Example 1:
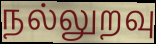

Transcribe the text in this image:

நல்லுறவு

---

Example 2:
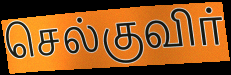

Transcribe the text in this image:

செல்குவிர்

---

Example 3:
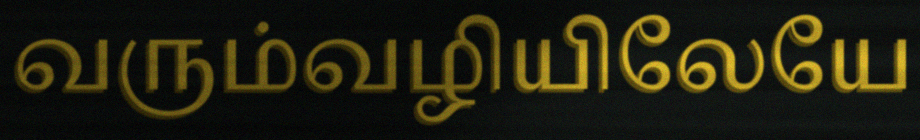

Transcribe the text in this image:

வரும்வழியிலேயே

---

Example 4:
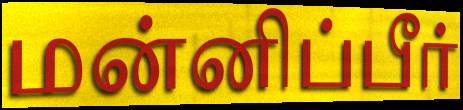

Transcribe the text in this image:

மன்னிப்பீர்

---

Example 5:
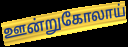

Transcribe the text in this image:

ஊன்றுகோலாய்